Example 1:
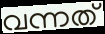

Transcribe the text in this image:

വന്നത്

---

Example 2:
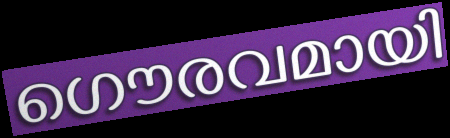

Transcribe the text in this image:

ഗൌരവമായി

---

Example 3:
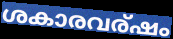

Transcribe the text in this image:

ശകാരവര്ഷം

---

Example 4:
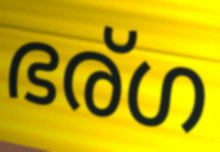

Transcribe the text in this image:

ഭര്ഗ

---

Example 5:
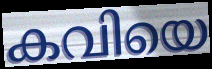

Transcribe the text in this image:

കവിയെ